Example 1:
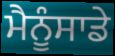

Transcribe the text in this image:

ਮੈਨੂੰਸਾਡੇ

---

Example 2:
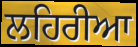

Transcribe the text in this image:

ਲਹਿਰੀਆ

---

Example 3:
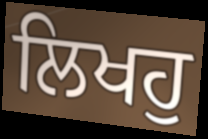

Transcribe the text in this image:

ਲਿਖਹੁ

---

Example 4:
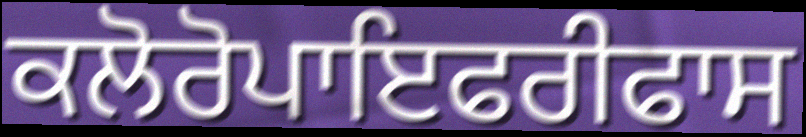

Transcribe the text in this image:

ਕਲੋਰੋਪਾਇਫਰੀਫਾਸ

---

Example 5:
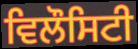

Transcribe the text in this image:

ਵਿਲੌਸਿਟੀ